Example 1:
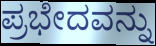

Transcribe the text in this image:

ಪ್ರಭೇದವನ್ನು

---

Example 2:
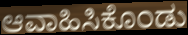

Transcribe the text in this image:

ಆವಾಹಿಸಿಕೊಂಡು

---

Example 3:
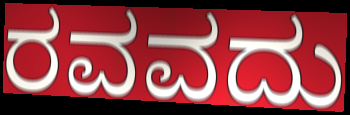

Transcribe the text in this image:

ರವವದು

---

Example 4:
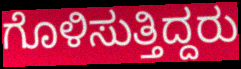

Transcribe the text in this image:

ಗೊಳಿಸುತ್ತಿದ್ದರು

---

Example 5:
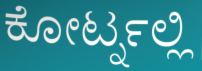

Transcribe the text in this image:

ಕೋರ್ಟ್ನಲ್ಲಿ